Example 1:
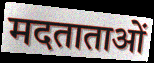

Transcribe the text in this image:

मदताताओं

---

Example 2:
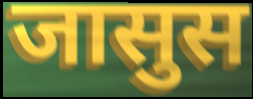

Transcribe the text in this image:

जासुस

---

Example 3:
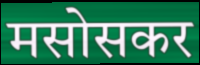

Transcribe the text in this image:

मसोसकर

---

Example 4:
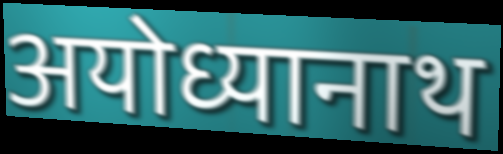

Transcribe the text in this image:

अयोध्यानाथ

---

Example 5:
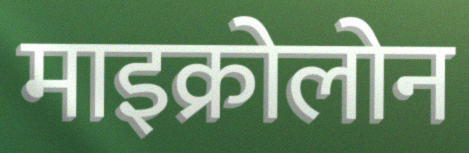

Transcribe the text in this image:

माइक्रोलोन